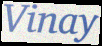
Vinay